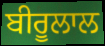
ਬੀਰੂਲਾਲ